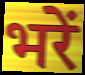
भरें